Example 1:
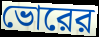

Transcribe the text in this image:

ভোরের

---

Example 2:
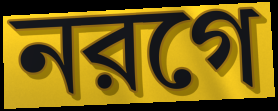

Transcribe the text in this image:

নরগে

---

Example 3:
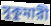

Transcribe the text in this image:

সুকুমারী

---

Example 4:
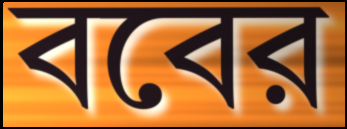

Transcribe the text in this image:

ববের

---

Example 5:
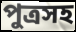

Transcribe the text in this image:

পুত্রসহ